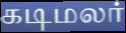
கடிமலர்